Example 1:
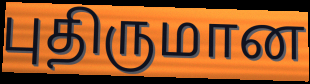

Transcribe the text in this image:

புதிருமான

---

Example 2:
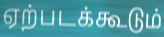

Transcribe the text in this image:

ஏற்படக்கூடும்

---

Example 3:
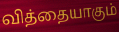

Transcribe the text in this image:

வித்தையாகும்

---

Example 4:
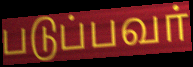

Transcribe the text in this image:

படுப்பவர்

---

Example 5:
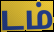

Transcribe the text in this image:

டம்